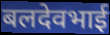
बलदेवभाई